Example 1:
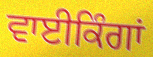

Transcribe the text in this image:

ਵਾਈਕਿੰਗਾਂ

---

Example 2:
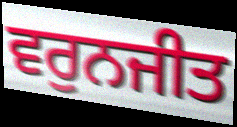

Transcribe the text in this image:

ਵਰੁਨਜੀਤ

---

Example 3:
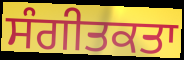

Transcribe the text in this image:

ਸੰਗੀਤਕਤਾ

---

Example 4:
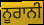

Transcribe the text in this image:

ਨੂਰਾਨੀ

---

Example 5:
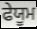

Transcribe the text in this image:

ਫੇਯੂਮ